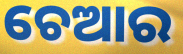
ଚେଆର